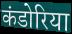
कंडोरिया